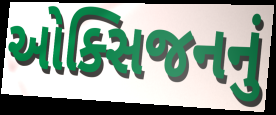
ઓક્સિજનનું